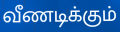
வீணடிக்கும்